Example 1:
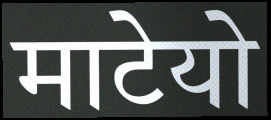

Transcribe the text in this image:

माटेयो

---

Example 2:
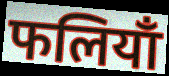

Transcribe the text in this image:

फलियाँ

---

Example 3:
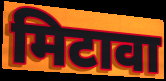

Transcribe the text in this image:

मिटावा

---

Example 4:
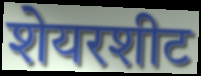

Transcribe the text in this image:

शेयरशीट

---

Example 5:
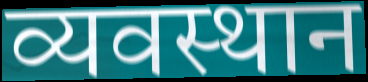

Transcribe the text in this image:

व्यवस्थान